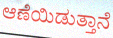
ಆಣೆಯಿಡುತ್ತಾನೆ